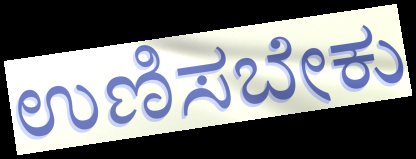
ಉಣಿಸಬೇಕು